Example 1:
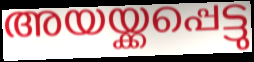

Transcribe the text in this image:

അയയ്ക്കപ്പെട്ടു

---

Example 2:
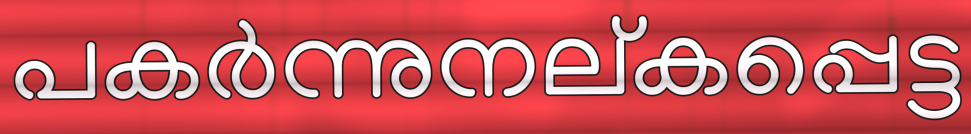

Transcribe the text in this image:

പകർന്നുനല്കപ്പെട്ട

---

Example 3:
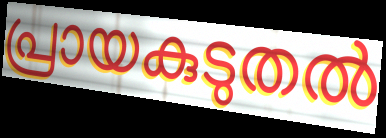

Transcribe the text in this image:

പ്രായകുടുതൽ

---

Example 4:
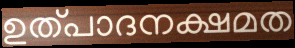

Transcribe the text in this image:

ഉത്പാദനക്ഷമത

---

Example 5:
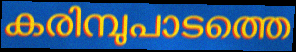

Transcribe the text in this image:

കരിമ്പുപാടത്തെ